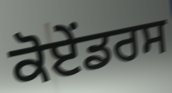
ਕੋਏਂਡਰਸ